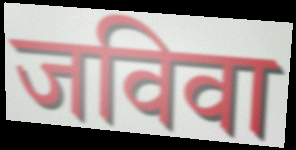
जविवा